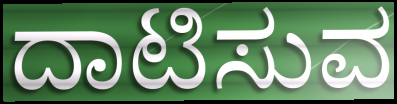
ದಾಟಿಸುವ